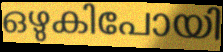
ഒഴുകിപോയി